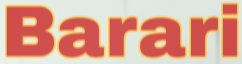
Barari